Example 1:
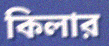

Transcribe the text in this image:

কিলার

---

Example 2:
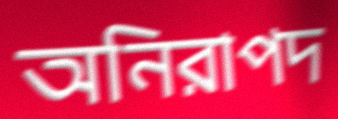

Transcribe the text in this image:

অনিরাপদ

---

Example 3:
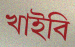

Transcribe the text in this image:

খাইবি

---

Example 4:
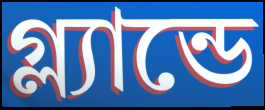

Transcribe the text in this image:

গ্ল্যান্ডে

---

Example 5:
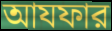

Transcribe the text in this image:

আযফার